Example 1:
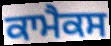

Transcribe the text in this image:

ਕਾਮੈਕਸ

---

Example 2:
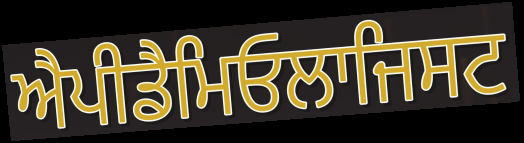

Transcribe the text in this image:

ਐਪੀਡੈਮਿਓਲਾਜਿਸਟ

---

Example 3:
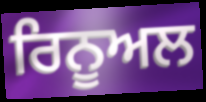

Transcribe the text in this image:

ਰਿਨੂਅਲ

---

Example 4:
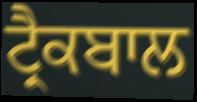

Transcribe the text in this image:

ਟ੍ਰੈਕਬਾਲ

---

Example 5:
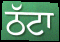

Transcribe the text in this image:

ਠੱਟਾ